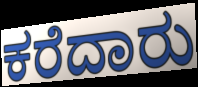
ಕರೆದಾರು